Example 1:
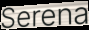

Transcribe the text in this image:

Serena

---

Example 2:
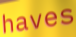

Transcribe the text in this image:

haves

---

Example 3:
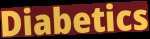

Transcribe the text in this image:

Diabetics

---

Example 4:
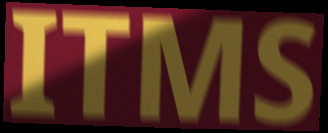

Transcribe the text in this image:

ITMS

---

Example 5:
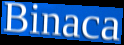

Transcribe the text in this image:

Binaca